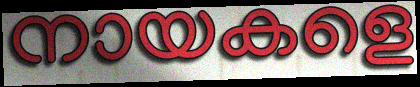
നായകളെ